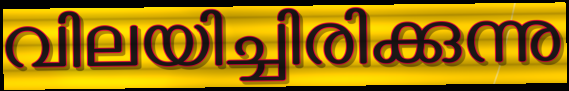
വിലയിച്ചിരിക്കുന്നു